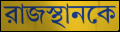
রাজস্থানকে